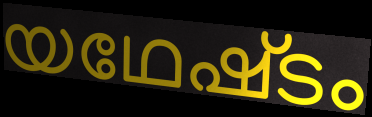
യഥേഷ്‌ടം